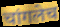
चांगलेच